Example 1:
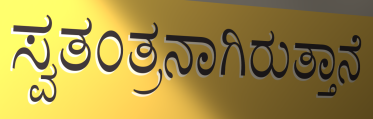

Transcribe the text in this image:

ಸ್ವತಂತ್ರನಾಗಿರುತ್ತಾನೆ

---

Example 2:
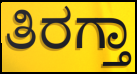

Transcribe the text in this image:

ತಿರಗ್ತಾ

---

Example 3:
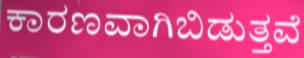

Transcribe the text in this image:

ಕಾರಣವಾಗಿಬಿಡುತ್ತವೆ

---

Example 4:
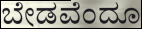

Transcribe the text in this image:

ಬೇಡವೆಂದೂ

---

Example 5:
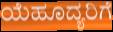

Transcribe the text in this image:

ಯೆಹೂದ್ಯರಿಗೆ